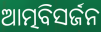
ଆତ୍ମବିସର୍ଜନ